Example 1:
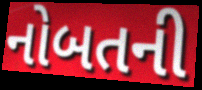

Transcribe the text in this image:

નોબતની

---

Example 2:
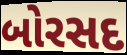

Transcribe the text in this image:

બોરસદ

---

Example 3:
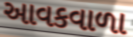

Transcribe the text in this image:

આવકવાળા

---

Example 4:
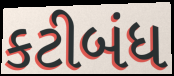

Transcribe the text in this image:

કટીબંધ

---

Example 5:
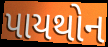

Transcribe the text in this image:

પાયથોન